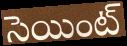
సెయింట్